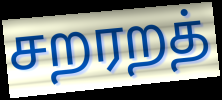
சறரறத்